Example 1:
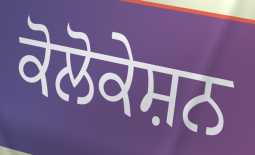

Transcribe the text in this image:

ਕੋਲੋਕੇਸ਼ਨ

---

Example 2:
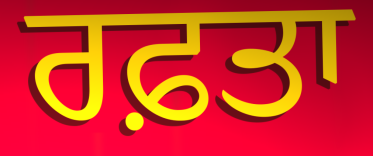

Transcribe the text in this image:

ਰਫ਼ਤਾ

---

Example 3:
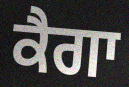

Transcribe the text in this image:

ਕੈਗਾ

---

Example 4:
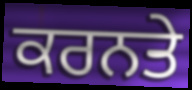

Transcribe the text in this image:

ਕਰਨਤੇ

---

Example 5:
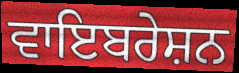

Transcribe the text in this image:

ਵਾਇਬਰੇਸ਼ਨ